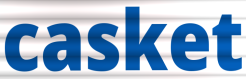
casket